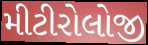
મીટીરોલોજી